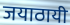
जयाठायी